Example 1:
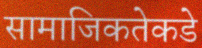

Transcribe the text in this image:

सामाजिकतेकडे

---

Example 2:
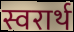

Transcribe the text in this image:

स्वरार्थ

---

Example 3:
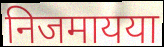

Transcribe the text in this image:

निजमायया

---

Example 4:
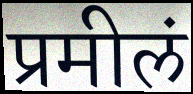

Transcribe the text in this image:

प्रमीलं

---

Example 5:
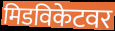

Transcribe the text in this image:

मिडविकेटवर